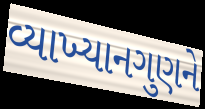
વ્યાખ્યાનગુણને